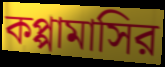
কপ্পামাসির